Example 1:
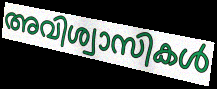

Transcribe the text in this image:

അവിശ്വാസികൾ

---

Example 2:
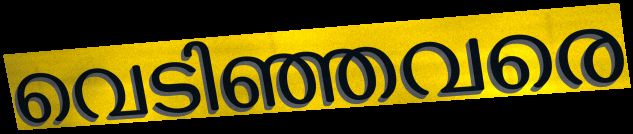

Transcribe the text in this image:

വെടിഞ്ഞവരെ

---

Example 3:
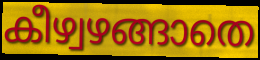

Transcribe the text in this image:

കീഴ്വഴങ്ങാതെ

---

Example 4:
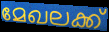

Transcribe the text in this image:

മേഖലക്ക്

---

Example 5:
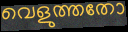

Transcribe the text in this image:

വെളുത്തതോ